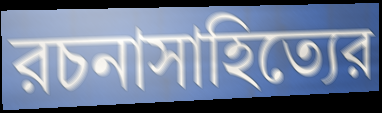
রচনাসাহিত্যের